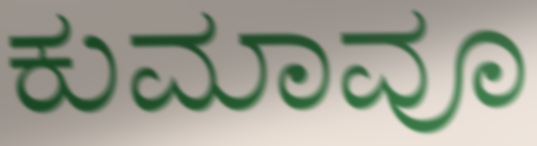
ಕುಮಾವೂ